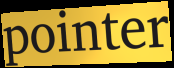
pointer